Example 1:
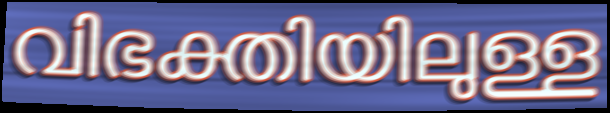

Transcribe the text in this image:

വിഭക്തിയിലുള്ള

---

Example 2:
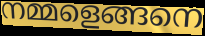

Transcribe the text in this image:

നമ്മളെങ്ങനെ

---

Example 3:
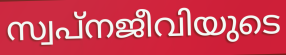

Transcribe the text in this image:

സ്വപ്നജീവിയുടെ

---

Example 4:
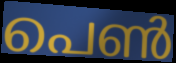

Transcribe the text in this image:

പെൺ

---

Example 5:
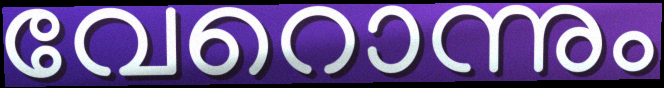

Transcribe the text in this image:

വേറൊന്നും